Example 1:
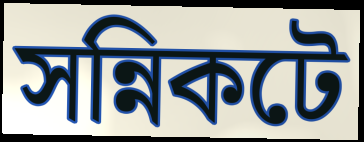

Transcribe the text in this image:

সন্নিকটে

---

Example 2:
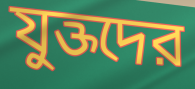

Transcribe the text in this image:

যুক্তদের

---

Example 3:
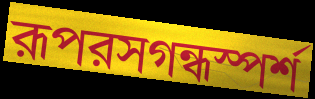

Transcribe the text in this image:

রূপরসগন্ধস্পর্শ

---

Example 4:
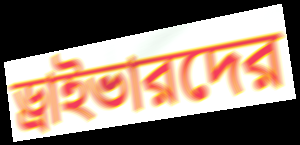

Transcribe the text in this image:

ড্রাইভারদের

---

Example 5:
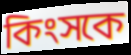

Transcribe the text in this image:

কিংসকে